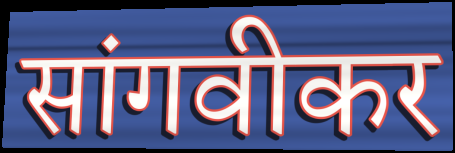
सांगवीकर